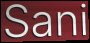
Sani